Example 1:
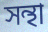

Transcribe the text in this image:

সন্থা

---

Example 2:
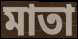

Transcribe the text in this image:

মাতা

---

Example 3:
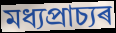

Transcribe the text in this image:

মধ্যপ্ৰাচ্যৰ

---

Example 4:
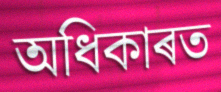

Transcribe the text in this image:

অধিকাৰত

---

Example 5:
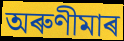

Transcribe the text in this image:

অৰুণীমাৰ